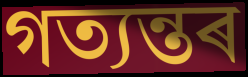
গত্যন্তৰ